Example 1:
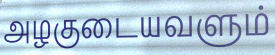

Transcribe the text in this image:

அழகுடையவளும்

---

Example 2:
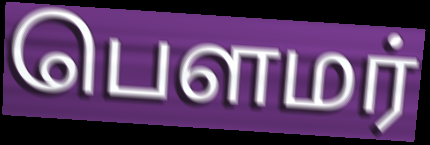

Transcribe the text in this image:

பௌமர்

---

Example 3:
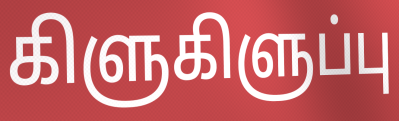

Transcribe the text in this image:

கிளுகிளுப்பு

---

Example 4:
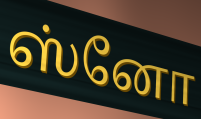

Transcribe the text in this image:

ஸ்னோ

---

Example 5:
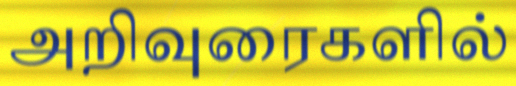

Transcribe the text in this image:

அறிவுரைகளில்